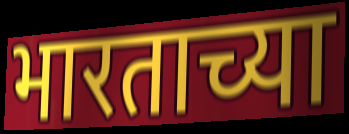
भारताच्या